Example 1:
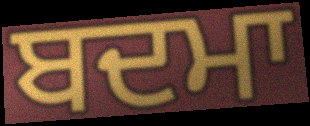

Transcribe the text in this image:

ਬਦਮਾ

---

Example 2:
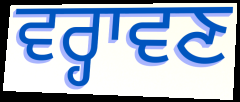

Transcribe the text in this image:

ਵਰ੍ਹਾਵਣ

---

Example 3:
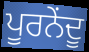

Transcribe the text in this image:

ਪੂਰਨੇਂਦੂ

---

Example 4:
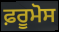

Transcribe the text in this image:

ਫ਼ਰੂਮੋਸ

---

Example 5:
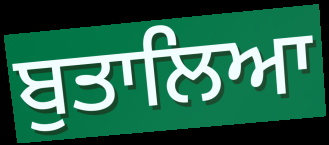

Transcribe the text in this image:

ਬੁਤਾਲਿਆ